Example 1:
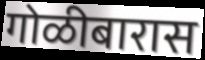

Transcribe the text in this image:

गोळीबारास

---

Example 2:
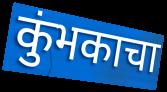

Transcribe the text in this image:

कुंभकाचा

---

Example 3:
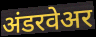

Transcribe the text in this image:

अंडरवेअर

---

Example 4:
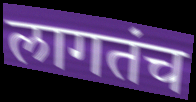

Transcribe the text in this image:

लागतंच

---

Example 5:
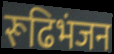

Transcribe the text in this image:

रूढिभंजन